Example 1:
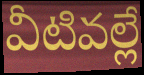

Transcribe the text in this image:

వీటివల్లే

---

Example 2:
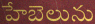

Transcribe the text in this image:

హేబెలును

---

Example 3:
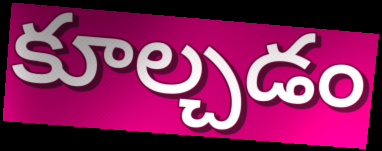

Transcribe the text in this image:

కూల్చడం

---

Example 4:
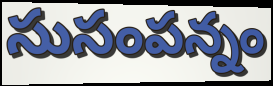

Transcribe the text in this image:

సుసంపన్నం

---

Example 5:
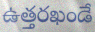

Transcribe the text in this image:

ఉత్తరఖండే